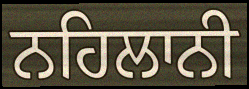
ਨਹਿਲਾਨੀ